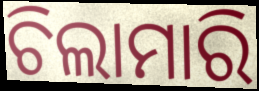
ଚିଲାମାରି